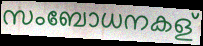
സംബോധനകള്